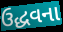
ઉદ્ધવના